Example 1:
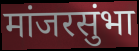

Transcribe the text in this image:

मांजरसुंभा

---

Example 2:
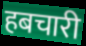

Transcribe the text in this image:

हबचारी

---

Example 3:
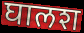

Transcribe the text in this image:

घालश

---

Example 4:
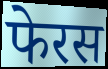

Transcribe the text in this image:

फेरस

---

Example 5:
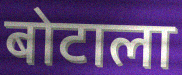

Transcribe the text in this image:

बोटाला